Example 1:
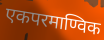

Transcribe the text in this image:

एकपरमाण्विक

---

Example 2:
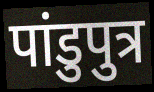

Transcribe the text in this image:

पांडुपुत्र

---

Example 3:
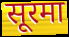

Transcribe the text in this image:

सूरमा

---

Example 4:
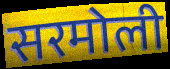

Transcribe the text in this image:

सरमोली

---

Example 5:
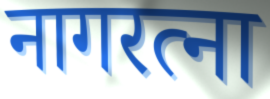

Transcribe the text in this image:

नागरत्ना